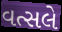
વત્સલે